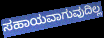
ಸಹಾಯವಾಗುವುದಿಲ್ಲ